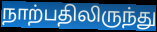
நாற்பதிலிருந்து